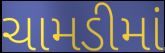
ચામડીમાં